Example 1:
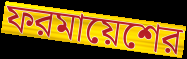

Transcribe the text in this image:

ফরমায়েশের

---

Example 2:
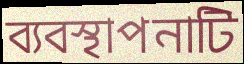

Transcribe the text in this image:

ব্যবস্থাপনাটি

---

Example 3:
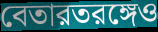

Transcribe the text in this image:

বেতারতরঙ্গেও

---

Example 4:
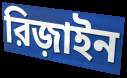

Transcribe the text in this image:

রিজ়াইন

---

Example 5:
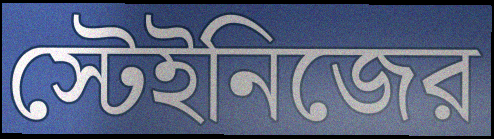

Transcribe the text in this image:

স্টেইনিজের